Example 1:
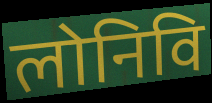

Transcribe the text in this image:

लोनिवि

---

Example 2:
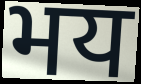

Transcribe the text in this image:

भय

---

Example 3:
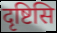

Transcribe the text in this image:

दृष्टिसि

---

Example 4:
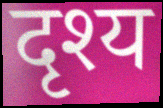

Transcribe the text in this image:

दृश्य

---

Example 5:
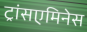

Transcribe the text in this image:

ट्रांसएमिनेस